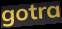
gotra